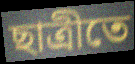
ছাত্রীতে